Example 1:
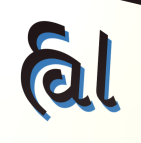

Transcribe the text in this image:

હ્વા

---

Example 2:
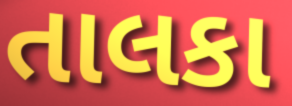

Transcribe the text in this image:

તાલકા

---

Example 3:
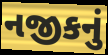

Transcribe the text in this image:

નજીકનું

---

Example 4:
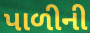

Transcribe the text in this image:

પાળીની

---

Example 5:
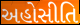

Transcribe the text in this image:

અહોસીતિ